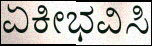
ಏಕೀಭವಿಸಿ